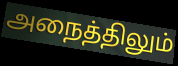
அநைத்திலும்